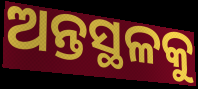
ଅନ୍ତସ୍ଥଳକୁ